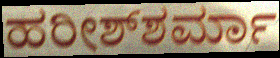
ಹರೀಶ್‌ಶರ್ಮಾ